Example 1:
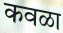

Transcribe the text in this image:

कवळा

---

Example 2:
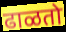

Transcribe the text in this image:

ढाळतो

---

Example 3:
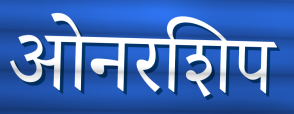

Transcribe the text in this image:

ओनरशिप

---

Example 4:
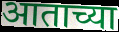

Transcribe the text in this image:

आताच्या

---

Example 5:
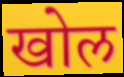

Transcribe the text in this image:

खोल